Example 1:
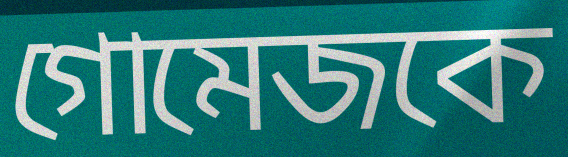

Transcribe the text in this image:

গোমেজকে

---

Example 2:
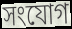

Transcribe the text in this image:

সংযোগ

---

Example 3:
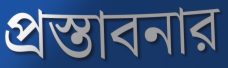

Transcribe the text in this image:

প্রস্তাবনার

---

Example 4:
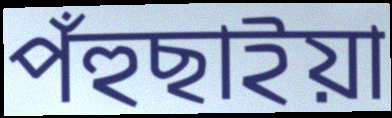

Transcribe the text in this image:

পঁহুছাইয়া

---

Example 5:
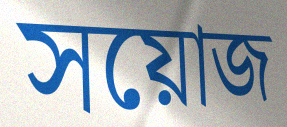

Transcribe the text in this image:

সয়োজ